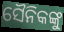
ସୈନିକଙ୍କୁ